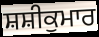
ਸ਼ਸ਼ੀਕੁਮਾਰ